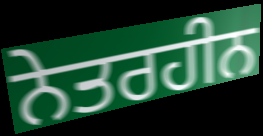
ਨੇਤਰਹੀਨ